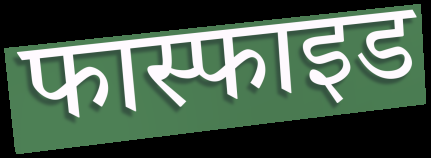
फास्फाइड